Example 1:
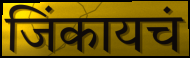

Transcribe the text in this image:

जिंकायचं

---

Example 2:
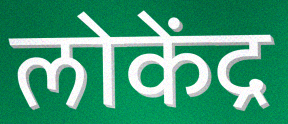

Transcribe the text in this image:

लोकेंद्र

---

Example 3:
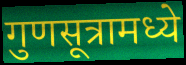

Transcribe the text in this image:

गुणसूत्रामध्ये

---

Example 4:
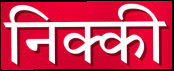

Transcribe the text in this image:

निक्की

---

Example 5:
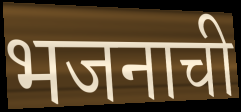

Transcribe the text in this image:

भजनाची